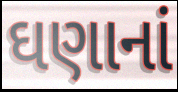
ઘણાનાં